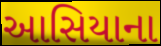
આસિયાના